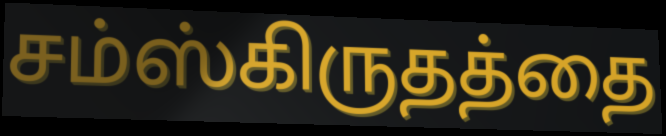
சம்ஸ்கிருதத்தை